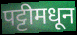
पट्टीमधून